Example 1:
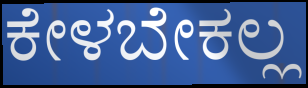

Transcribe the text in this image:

ಕೇಳಬೇಕಲ್ಲ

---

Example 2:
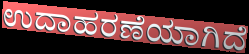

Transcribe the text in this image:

ಉದಾಹರಣೆಯಾಗಿದೆ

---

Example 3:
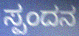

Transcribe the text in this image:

ಸ್ಪಂದನ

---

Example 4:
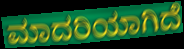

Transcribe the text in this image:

ಮಾದರಿಯಾಗಿದೆ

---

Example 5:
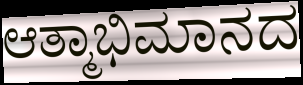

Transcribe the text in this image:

ಆತ್ಮಾಭಿಮಾನದ